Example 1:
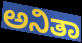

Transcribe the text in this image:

ಅನಿತಾ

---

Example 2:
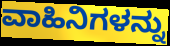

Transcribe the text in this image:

ವಾಹಿನಿಗಳನ್ನು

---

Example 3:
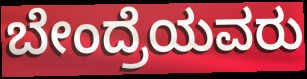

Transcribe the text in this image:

ಬೇಂದ್ರೆಯವರು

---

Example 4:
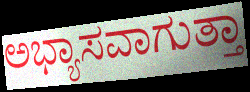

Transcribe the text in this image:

ಅಭ್ಯಾಸವಾಗುತ್ತಾ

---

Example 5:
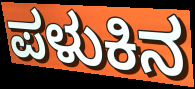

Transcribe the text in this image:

ಪಳುಕಿನ